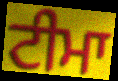
ਟੀਮਾ